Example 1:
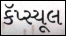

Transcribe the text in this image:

કૅપ્સ્યૂલ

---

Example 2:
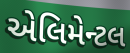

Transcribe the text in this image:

એલિમેન્ટલ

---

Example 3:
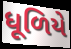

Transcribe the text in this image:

ધૂળિયે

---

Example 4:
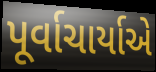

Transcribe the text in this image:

પૂર્વાચાર્યાએ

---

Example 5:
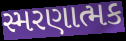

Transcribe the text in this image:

સ્મરણાત્મક